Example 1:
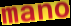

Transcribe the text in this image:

mano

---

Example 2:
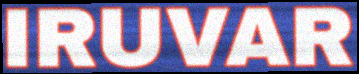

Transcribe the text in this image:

IRUVAR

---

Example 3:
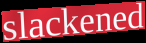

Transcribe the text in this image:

slackened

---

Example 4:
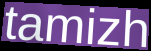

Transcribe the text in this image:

tamizh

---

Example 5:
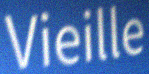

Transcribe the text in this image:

Vieille